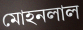
মোহনলাল